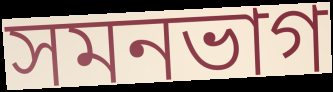
সমনভাগ